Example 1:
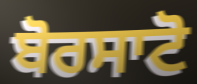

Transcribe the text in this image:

ਬੋਰਸਾਟੋ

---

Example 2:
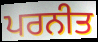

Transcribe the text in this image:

ਪਰਨੀਤ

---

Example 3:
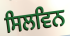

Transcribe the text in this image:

ਸਿਲਵਿਨ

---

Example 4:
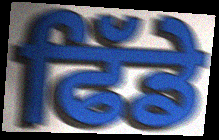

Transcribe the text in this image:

ਫਿੱਡੇ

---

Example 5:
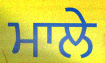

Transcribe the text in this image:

ਮਾਲੇ